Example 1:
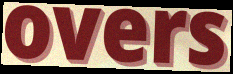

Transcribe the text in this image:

overs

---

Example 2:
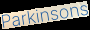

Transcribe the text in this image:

Parkinsons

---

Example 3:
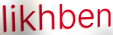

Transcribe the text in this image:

likhben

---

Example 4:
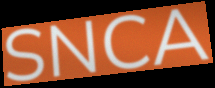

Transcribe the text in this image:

SNCA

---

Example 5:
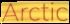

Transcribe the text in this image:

Arctic